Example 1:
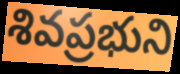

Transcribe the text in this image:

శివప్రభుని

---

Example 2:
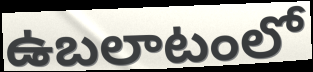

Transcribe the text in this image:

ఉబలాటంలో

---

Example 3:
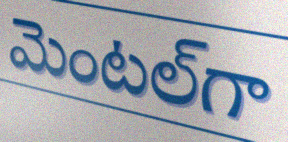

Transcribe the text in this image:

మెంటల్‌గా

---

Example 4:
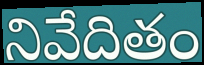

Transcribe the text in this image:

నివేదితం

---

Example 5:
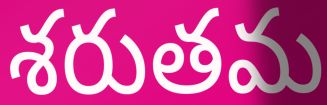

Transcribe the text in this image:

శరుతమ